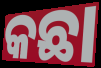
କଛା